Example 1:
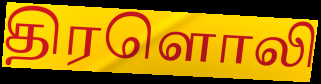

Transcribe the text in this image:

திரளொலி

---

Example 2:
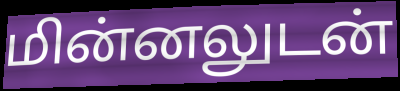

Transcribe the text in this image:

மின்னலுடன்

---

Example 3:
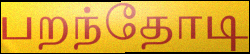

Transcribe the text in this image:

பறந்தோடி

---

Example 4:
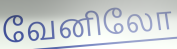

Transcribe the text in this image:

வேனிலோ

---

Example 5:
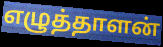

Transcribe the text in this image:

எழுத்தாளன்